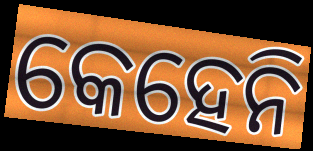
କେହେନି